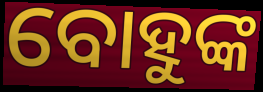
ବୋହୁଙ୍କ